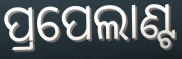
ପ୍ରପେଲାଣ୍ଟ